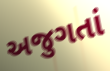
અજુગતાં